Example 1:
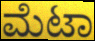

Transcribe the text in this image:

ಮೆಟಾ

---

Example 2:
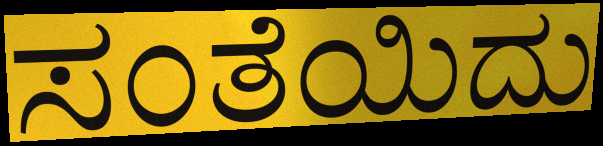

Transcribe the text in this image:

ಸಂತೆಯಿದು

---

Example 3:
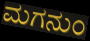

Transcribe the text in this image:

ಮಗನುಂ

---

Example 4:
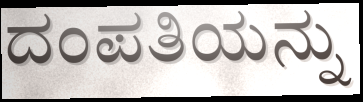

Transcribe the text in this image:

ದಂಪತಿಯನ್ನು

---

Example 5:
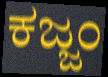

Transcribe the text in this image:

ಕಜ್ಜಂ